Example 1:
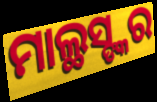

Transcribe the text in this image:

ମାଲ୍ଥସ୍ଙ୍କର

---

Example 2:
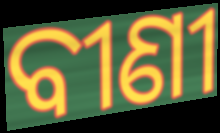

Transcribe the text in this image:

ବୀଣୀ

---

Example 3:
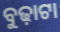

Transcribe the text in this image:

ବୁଢ଼ାଟା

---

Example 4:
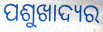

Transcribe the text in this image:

ପଶୁଖାଦ୍ୟର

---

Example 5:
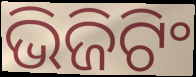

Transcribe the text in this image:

ଭିଜିଟିଂ